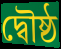
দ্বৌষ্ঠ